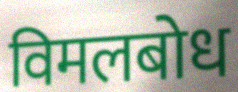
विमलबोध